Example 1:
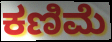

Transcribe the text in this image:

ಕಣಿಮೆ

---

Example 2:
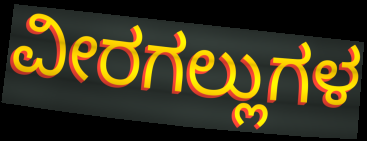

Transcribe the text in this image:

ವೀರಗಲ್ಲುಗಳ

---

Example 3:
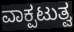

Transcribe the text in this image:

ವಾಕ್ಪಟುತ್ವ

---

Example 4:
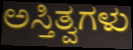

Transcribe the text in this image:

ಅಸ್ತಿತ್ವಗಳು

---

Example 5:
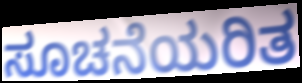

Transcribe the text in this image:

ಸೂಚನೆಯರಿತ